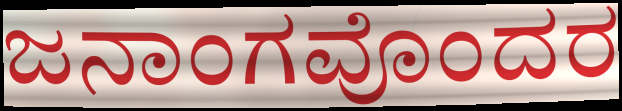
ಜನಾಂಗವೊಂದರ